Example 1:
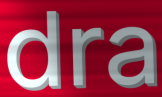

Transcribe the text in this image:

dra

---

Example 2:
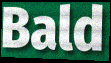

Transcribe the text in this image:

Bald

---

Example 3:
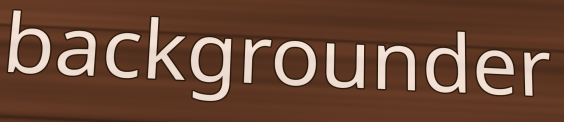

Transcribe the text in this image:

backgrounder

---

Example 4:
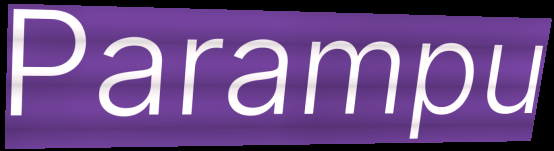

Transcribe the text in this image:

Parampu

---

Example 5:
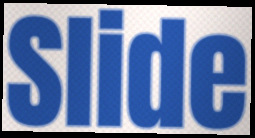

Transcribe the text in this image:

Slide